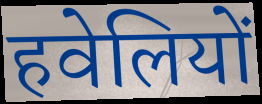
हवेलियों